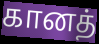
கானத்